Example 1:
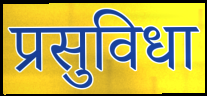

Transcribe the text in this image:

प्रसुविधा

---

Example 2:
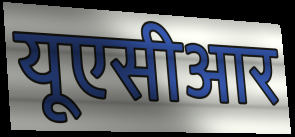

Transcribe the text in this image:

यूएसीआर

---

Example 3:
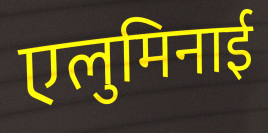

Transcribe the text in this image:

एलुमिनाई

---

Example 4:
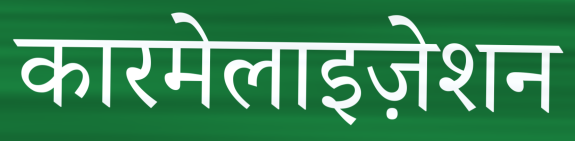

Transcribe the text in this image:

कारमेलाइज़ेशन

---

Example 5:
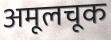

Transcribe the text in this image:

अमूलचूक